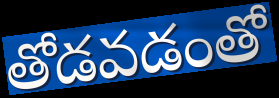
తోడవడంతో